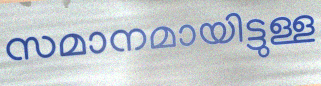
സമാനമായിട്ടുള്ള